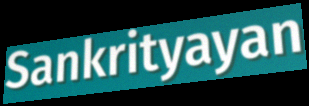
Sankrityayan